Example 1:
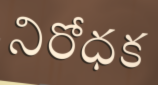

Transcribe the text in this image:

నిరోధక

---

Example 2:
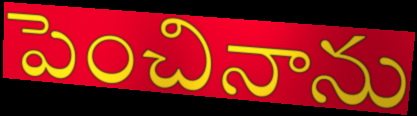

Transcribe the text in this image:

పెంచినాను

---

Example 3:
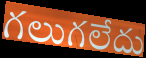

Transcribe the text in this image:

గలుగలేదు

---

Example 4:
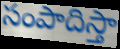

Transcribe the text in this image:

సంపాదిస్తా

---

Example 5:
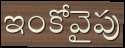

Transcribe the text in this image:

ఇంకోవైపు